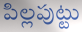
పిల్లపుట్టు